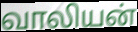
வாலியன்